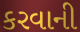
કરવાની